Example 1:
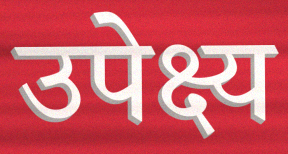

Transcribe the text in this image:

उपेक्ष्य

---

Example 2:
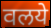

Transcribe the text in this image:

वलये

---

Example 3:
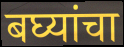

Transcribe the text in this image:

बघ्यांचा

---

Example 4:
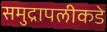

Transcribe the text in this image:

समुद्रापलीकडे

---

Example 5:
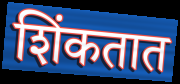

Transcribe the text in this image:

शिंकतात